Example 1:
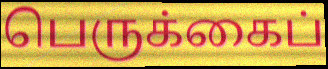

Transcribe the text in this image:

பெருக்கைப்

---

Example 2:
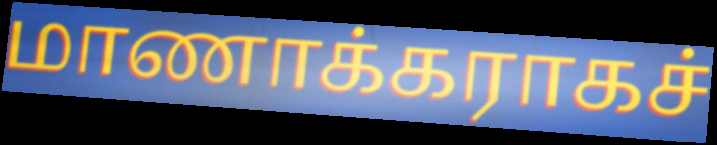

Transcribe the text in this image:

மாணாக்கராகச்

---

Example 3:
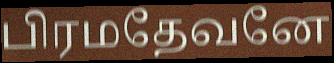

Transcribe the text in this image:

பிரமதேவனே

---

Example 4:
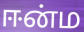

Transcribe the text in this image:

ஈன்ம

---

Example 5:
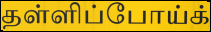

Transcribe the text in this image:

தள்ளிப்போய்க்